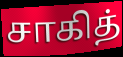
சாகித்